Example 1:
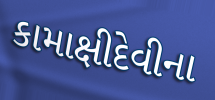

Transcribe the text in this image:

કામાક્ષીદેવીના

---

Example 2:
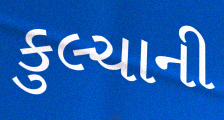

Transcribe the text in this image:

કુલ્ચાની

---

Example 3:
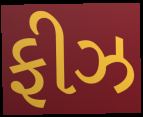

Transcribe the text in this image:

ફીઝ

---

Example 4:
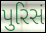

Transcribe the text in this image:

પુરિસં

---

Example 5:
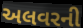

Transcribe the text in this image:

અલવરની